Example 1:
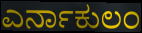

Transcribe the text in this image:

ಎರ್ನಾಕುಲಂ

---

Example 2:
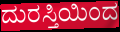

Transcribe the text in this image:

ದುರಸ್ತಿಯಿಂದ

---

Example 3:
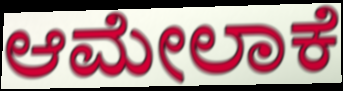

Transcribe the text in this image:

ಆಮೇಲಾಕೆ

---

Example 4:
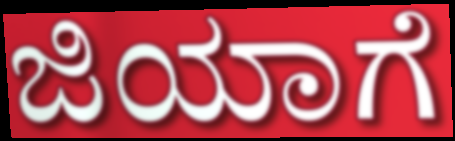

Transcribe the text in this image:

ಜಿಯಾಗೆ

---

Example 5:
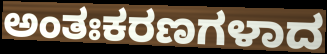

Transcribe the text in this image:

ಅಂತಃಕರಣಗಳಾದ